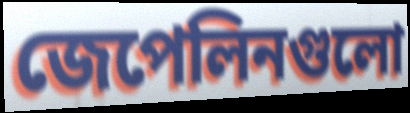
জেপেলিনগুলো